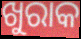
ଖୁରାକ